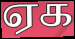
ஏக